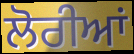
ਲੋਰੀਆਂ